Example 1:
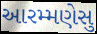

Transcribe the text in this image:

આરમ્મણેસુ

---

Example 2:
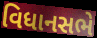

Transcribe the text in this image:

વિધાનસભે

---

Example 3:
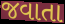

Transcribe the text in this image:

જવાતા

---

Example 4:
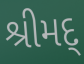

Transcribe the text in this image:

શ્રીમદ્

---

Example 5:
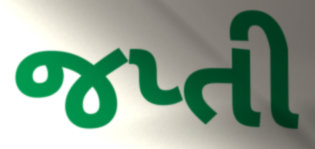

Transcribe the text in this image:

જપ્તી